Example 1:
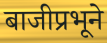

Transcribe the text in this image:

बाजीप्रभूने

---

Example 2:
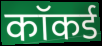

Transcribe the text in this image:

कॉकर्ड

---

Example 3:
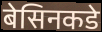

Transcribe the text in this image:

बेसिनकडे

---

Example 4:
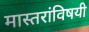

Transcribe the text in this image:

मास्तरांविषयी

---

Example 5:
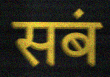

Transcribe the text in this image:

सबं